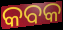
କବକ